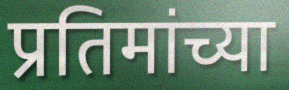
प्रतिमांच्या